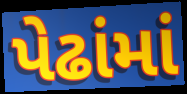
પેઢાંમાં